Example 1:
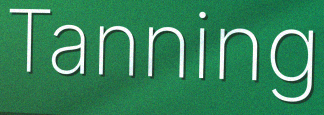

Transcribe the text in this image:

Tanning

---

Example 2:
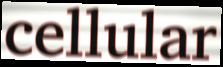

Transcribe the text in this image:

cellular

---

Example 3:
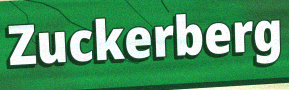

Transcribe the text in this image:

Zuckerberg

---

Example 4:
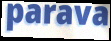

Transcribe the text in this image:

parava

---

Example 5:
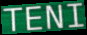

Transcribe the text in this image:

TENI